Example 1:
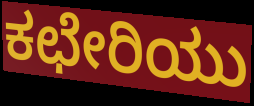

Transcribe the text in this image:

ಕಛೇರಿಯು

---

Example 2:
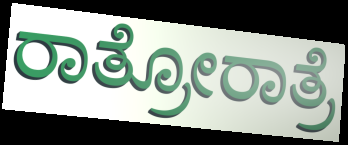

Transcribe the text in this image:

ರಾತ್ರೋರಾತ್ರೆ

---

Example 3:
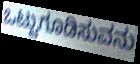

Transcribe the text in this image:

ಒಟ್ಟುಗೂಡಿಸುವನು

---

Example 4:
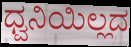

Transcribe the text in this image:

ಧ್ವನಿಯಿಲ್ಲದ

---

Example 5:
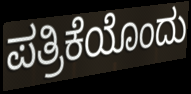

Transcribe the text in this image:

ಪತ್ರಿಕೆಯೊಂದು